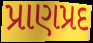
પ્રાણપ્રદ